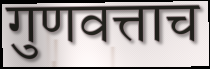
गुणवत्ताच